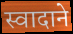
स्वादाने